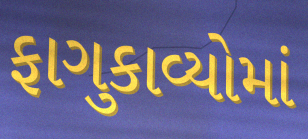
ફાગુકાવ્યોમાં